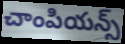
చాంపియన్స్